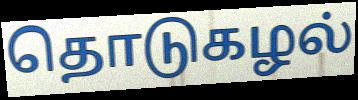
தொடுகழல்